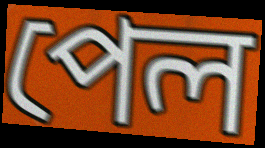
পেল